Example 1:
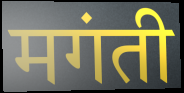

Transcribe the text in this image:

मगंती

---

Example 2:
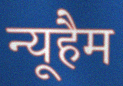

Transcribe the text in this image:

न्यूहैम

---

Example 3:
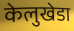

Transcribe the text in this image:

केलुखेडा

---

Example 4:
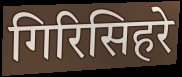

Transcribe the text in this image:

गिरिसिहरे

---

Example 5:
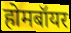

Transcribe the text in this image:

होमबॉयर